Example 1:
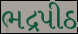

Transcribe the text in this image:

ભદ્રપીઠ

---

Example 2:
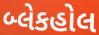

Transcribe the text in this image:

બ્લેકહોલ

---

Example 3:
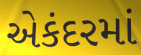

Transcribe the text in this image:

એકંદરમાં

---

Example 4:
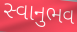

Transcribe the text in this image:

સ્વાનુભવ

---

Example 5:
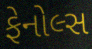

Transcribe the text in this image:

ફેનોલ્સ